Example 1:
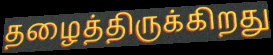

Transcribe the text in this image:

தழைத்திருக்கிறது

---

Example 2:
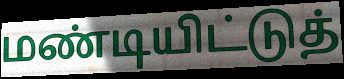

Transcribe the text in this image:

மண்டியிட்டுத்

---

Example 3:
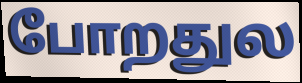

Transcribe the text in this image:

போறதுல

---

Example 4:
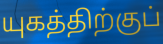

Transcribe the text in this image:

யுகத்திற்குப்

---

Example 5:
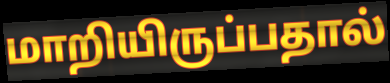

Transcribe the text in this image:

மாறியிருப்பதால்